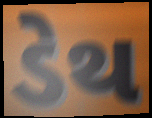
ડેથ